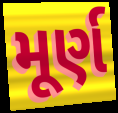
મૂર્ણ